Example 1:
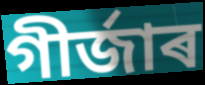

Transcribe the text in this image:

গীৰ্জাৰ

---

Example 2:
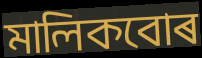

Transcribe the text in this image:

মালিকবোৰ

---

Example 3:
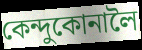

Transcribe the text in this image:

কেন্দুকোনালৈ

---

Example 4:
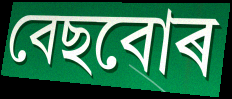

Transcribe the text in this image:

বেছবোৰ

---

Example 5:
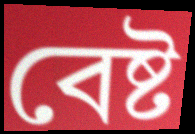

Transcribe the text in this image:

বেষ্ট